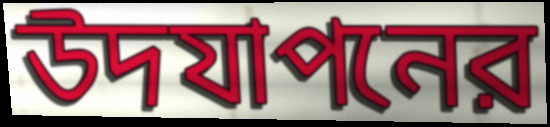
উদযাপনের